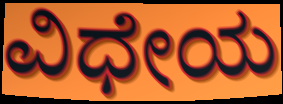
ವಿಧೇಯ